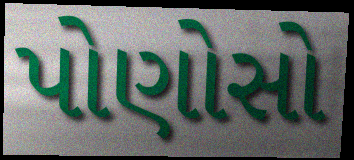
પોણોસો